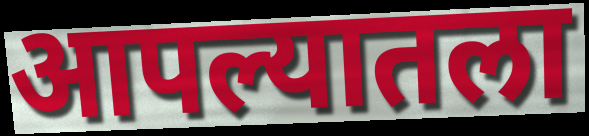
आपल्यातला